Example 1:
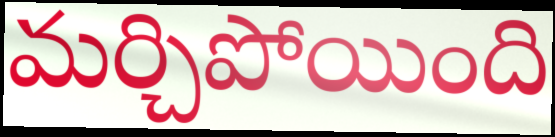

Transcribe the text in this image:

మర్చిపోయింది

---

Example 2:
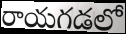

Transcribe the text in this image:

రాయగడలో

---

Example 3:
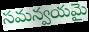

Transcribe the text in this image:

సమన్వయమై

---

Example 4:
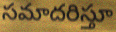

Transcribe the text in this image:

సమాదరిస్తూ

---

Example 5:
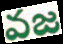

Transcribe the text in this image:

వజ